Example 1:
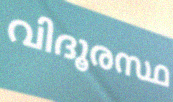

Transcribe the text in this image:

വിദൂരസ്ഥ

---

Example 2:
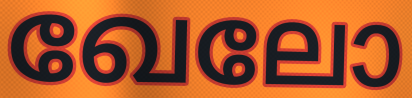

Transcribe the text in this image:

ഖേലോ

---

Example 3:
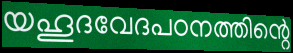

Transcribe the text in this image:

യഹൂദവേദപഠനത്തിന്റെ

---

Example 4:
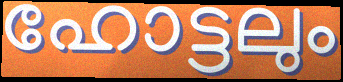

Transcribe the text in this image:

ഹോട്ടലും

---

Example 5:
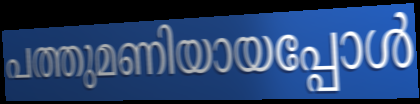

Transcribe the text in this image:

പത്തുമണിയായപ്പോൾ